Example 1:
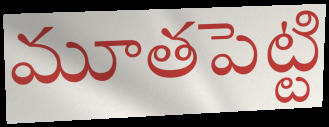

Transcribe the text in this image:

మూతపెట్టి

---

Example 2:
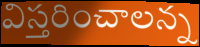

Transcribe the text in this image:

విస్తరించాలన్న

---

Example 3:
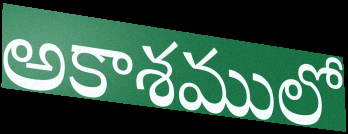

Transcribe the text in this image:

అకాశములో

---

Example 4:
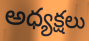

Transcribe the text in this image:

అధ్యక్షలు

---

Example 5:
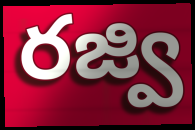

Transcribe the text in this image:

రజ్వి